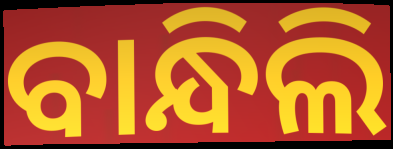
ବାନ୍ଧିଲି